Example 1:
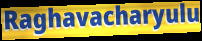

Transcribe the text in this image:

Raghavacharyulu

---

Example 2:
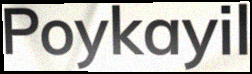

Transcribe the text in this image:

Poykayil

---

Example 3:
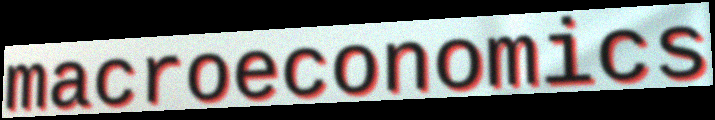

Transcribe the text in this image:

macroeconomics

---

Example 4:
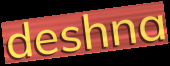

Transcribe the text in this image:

deshna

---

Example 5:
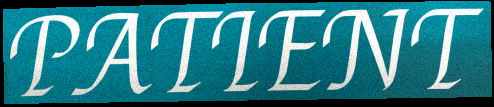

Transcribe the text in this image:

PATIENT